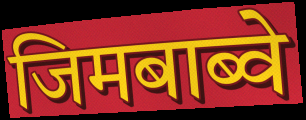
जिमबाब्वे